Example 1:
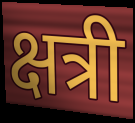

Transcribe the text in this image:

क्षत्री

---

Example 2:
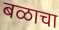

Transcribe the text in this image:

बळाचा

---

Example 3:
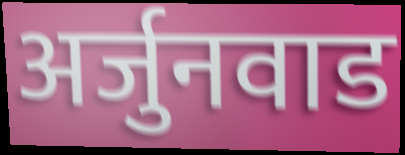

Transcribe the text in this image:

अर्जुनवाड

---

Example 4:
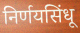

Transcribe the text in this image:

निर्णयसिंधू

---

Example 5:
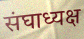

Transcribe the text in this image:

संघाध्यक्ष